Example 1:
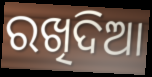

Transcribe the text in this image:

ରଖିଦିଆ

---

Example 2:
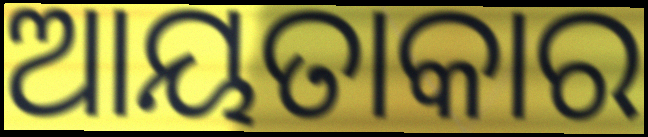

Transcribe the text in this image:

ଆୟତାକାର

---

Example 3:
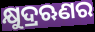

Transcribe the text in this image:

କ୍ଷୁଦ୍ରଋଣର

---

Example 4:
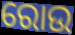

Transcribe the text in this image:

ରୋଉ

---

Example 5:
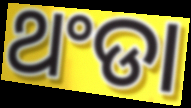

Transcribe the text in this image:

ଥଂଡା